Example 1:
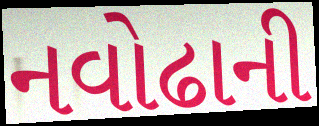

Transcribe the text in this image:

નવોઢાની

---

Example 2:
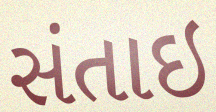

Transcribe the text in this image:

સંતાઇ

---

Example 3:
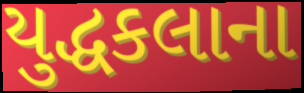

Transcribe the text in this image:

યુદ્ધકલાના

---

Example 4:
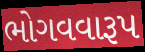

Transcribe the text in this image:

ભોગવવારૂપ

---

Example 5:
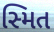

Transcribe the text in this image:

સ્મિત